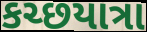
કચ્છયાત્રા